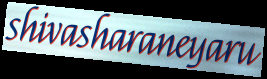
shivasharaneyaru